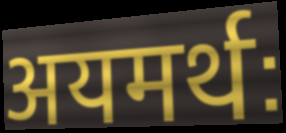
अयमर्थः